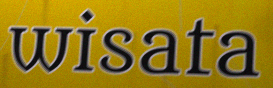
wisata